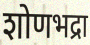
शोणभद्रा